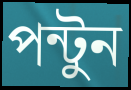
পন্টুন